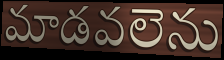
మాడవలెను